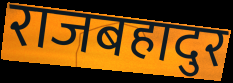
राजबहादुर